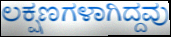
ಲಕ್ಷಣಗಳಾಗಿದ್ದವು